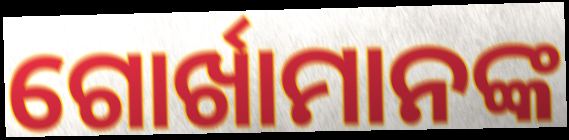
ଗୋର୍ଖାମାନଙ୍କ